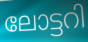
ലോട്ടറി